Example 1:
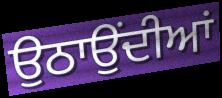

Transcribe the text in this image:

ਉਠਾਉਂਦੀਆਂ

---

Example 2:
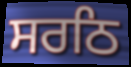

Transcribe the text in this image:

ਸਰਠਿ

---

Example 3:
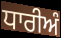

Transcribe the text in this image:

ਧਾਰੀਅੰ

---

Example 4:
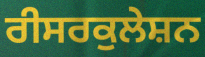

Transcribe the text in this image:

ਰੀਸਰਕੁਲੇਸ਼ਨ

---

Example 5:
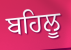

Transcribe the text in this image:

ਬਹਿਲੂ